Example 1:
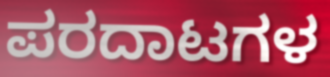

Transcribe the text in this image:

ಪರದಾಟಗಳ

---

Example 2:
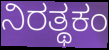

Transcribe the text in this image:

ನಿರತ್ಥಕಂ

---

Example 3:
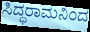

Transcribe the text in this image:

ಸಿದ್ಧರಾಮನಿಂದ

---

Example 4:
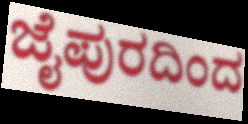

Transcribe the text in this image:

ಜೈಪುರದಿಂದ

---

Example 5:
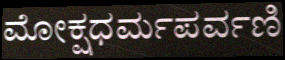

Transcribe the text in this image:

ಮೋಕ್ಷಧರ್ಮಪರ್ವಣಿ